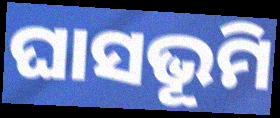
ଘାସଭୂମି